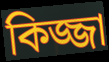
কিজ্জা